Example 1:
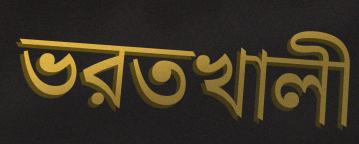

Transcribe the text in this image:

ভরতখালী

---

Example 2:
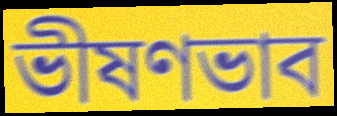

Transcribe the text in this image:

ভীষণভাব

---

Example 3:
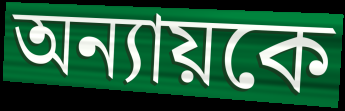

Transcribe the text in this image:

অন্যায়কে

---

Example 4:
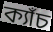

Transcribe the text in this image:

ক্যাঁচ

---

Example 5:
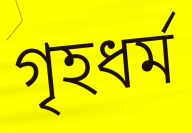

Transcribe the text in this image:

গৃহধর্ম